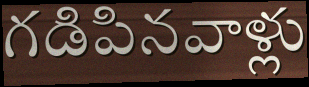
గడిపినవాళ్లు